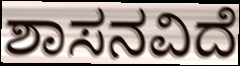
ಶಾಸನವಿದೆ